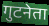
गुटनेता